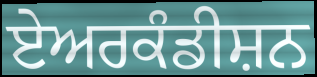
ਏਅਰਕੰਡੀਸ਼ਨ